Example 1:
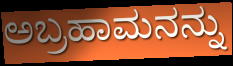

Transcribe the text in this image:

ಅಬ್ರಹಾಮನನ್ನು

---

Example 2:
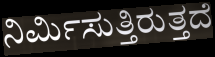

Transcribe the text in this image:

ನಿರ್ಮಿಸುತ್ತಿರುತ್ತದೆ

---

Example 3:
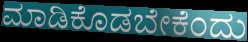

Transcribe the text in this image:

ಮಾಡಿಕೊಡಬೇಕೆಂದು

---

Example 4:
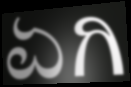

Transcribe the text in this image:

ಏಗಿ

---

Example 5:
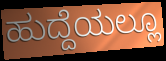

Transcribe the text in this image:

ಹುದ್ದೆಯಲ್ಲೂ